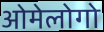
ओमेलोगो